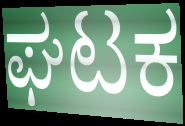
ಘಟಕ